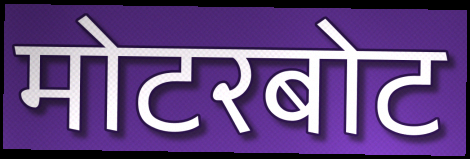
मोटरबोट